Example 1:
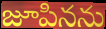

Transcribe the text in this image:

జూపినను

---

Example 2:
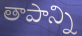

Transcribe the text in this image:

తాపాన్ని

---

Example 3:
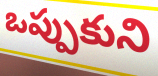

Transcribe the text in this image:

ఒప్పుకుని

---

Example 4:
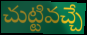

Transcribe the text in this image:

చుట్టివచ్చే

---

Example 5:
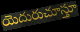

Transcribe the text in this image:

యెదురుచూస్తూ